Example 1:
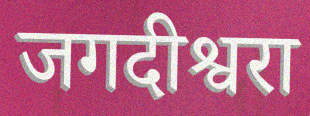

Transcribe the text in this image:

जगदीश्वरा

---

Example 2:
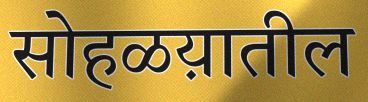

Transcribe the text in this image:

सोहळय़ातील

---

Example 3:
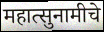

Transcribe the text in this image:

महात्सुनामीचे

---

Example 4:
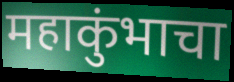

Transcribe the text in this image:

महाकुंभाचा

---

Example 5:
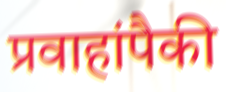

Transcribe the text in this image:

प्रवाहांपैकी